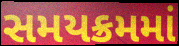
સમયક્રમમાં